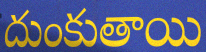
దుంకుతాయి